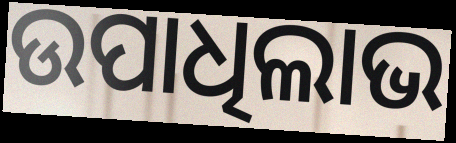
ଉପାଧିଲାଭ